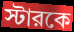
স্টারকে